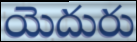
యెదురు